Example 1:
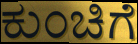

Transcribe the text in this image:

ಕುಂಚಿಗೆ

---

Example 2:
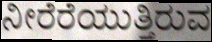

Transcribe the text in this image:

ನೀರೆರೆಯುತ್ತಿರುವ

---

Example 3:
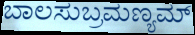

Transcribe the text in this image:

ಬಾಲಸುಬ್ರಮಣ್ಯಮ್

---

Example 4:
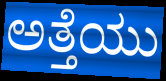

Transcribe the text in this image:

ಅತ್ತೆಯು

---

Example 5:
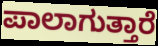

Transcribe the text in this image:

ಪಾಲಾಗುತ್ತಾರೆ